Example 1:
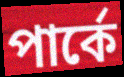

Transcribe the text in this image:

পার্কে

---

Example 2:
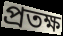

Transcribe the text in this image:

প্রতক্ষ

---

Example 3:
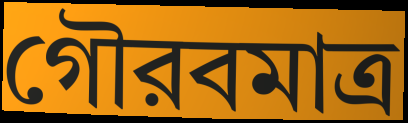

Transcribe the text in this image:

গৌরবমাত্র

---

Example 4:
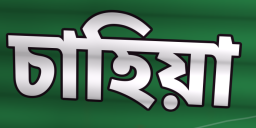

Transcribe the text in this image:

চাহিয়া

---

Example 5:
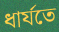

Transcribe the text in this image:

ধার্যতে